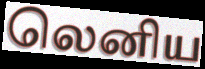
லெனிய